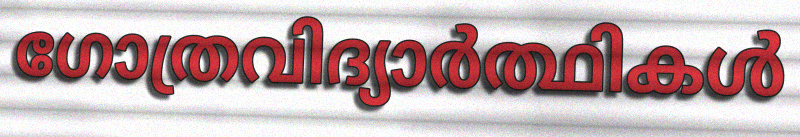
ഗോത്രവിദ്യാർത്ഥികൾ